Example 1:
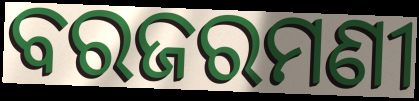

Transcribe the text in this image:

ବରଜରମଣୀ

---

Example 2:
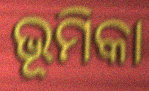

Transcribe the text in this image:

ଭୂମିକା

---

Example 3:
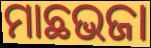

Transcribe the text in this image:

ମାଛଭଜା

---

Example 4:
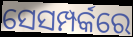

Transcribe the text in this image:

ସେସମ୍ପର୍କରେ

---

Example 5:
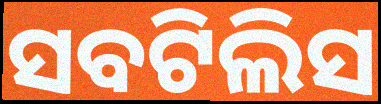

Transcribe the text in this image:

ସବଟିଲିସ